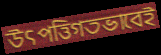
উৎপত্তিগতভাবেই